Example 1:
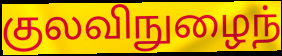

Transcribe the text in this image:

குலவிநுழைந்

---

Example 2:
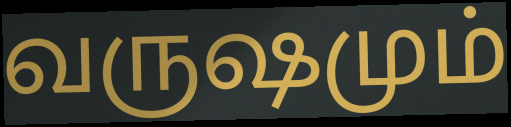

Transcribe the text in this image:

வருஷமும்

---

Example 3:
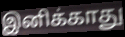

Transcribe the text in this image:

இனிக்காது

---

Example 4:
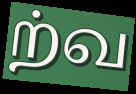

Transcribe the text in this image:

ற்வ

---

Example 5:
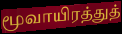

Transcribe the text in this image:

மூவாயிரத்துத்